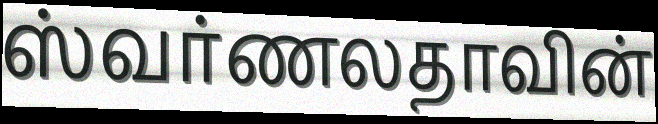
ஸ்வர்ணலதாவின்